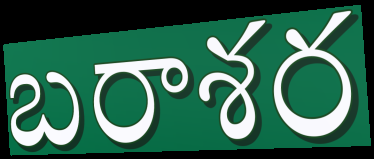
బరాశర